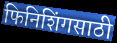
फिनिशिंगसाठी